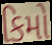
કિમો